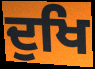
ਦੁਖਿ